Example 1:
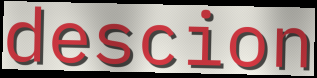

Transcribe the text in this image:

descion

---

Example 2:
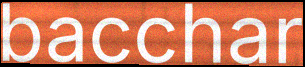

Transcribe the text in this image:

bacchar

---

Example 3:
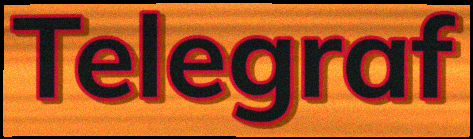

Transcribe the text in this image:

Telegraf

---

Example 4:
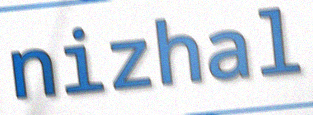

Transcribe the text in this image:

nizhal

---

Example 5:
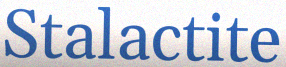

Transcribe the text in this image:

Stalactite